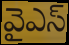
వైఎస్